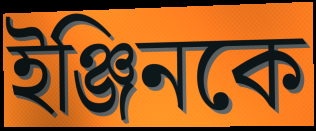
ইঞ্জিনকে